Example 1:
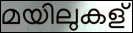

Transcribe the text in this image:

മയിലുകള്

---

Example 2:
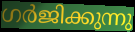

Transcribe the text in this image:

ഗർജിക്കുന്നു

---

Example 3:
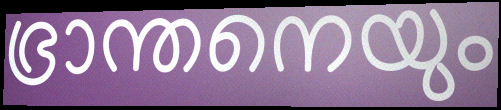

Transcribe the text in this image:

ഭ്രാന്തനെയും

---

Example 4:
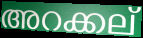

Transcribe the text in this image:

അറക്കല്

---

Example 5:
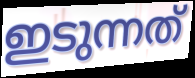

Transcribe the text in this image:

ഇടുന്നത്